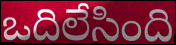
ఒదిలేసింది